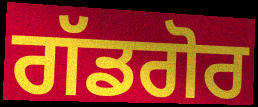
ਗੱਡਗੋਰ